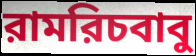
রামরিচবাবু